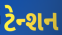
ટેન્શન